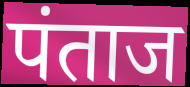
पंताज